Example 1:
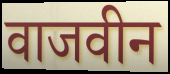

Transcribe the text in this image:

वाजवीन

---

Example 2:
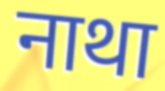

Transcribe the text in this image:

नाथा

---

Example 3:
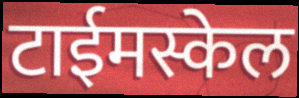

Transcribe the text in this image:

टाईमस्केल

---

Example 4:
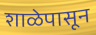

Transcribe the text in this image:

शाळेपासून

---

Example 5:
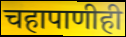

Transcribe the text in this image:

चहापाणीही